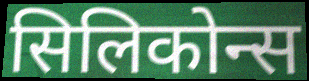
सिलिकोन्स